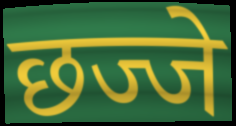
छज्जे